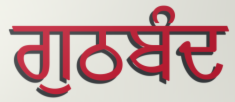
ਗੁਠਬੰਦ